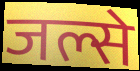
जल्से